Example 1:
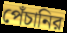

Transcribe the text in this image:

পেঁচানির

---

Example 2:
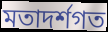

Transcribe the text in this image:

মতাদর্শগত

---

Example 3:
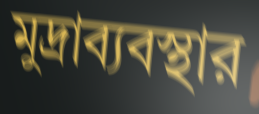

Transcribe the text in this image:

মুদ্রাব্যবস্থার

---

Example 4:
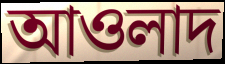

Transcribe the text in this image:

আওলাদ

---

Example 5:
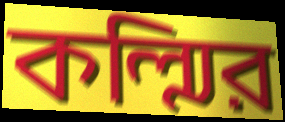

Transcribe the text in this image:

কল্মির